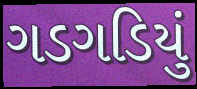
ગડગડિયું